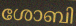
ശോബി